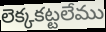
లెక్కకట్టలేము